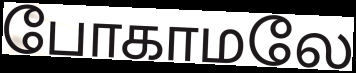
போகாமலே